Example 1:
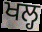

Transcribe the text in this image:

ਖਲ੍ਹ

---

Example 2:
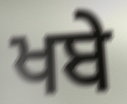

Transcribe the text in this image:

ਖਬੇ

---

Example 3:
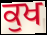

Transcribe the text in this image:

ਕੁਖ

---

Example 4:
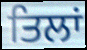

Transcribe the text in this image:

ਤਿਲਾਂ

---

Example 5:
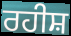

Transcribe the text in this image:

ਰਹੀਸ਼